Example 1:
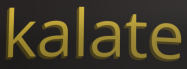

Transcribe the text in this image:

kalate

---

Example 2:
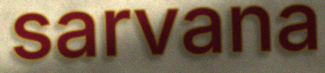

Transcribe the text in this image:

sarvana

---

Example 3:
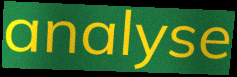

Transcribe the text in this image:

analyse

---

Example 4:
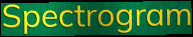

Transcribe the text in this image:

Spectrogram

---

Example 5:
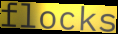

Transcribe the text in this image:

flocks